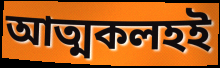
আত্মকলহই